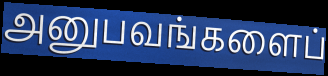
அனுபவங்களைப்